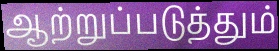
ஆற்றுப்படுத்தும்